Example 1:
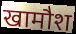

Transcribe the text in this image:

खामौश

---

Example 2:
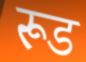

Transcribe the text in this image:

रूड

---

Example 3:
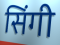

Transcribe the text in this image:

सिंगी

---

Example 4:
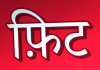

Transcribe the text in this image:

फ़िट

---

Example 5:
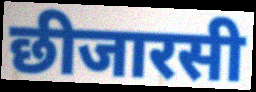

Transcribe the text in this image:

छीजारसी